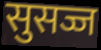
सुसज्ज